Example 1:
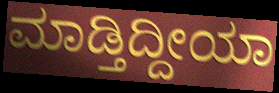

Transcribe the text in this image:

ಮಾಡ್ತಿದ್ದೀಯಾ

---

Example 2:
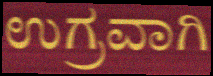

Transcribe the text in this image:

ಉಗ್ರವಾಗಿ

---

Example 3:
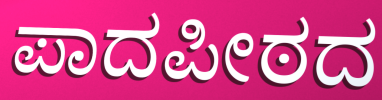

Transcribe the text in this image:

ಪಾದಪೀಠದ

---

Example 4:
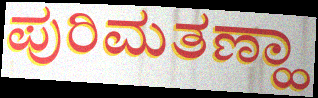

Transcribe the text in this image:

ಪುರಿಮತಣ್ಹಾ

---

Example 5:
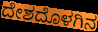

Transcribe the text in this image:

ದೇಶದೊಳಗಿನ